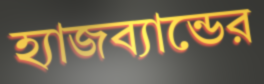
হ্যাজব্যান্ডের